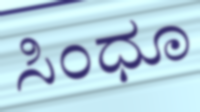
ಸಿಂಧೂ